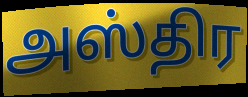
அஸ்திர